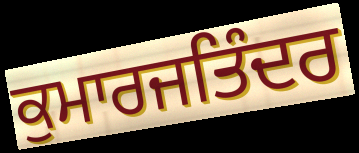
ਕੁਮਾਰਜਤਿੰਦਰ